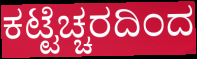
ಕಟ್ಟೆಚ್ಚರದಿಂದ